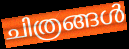
ചിത്രങ്ങൾ